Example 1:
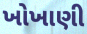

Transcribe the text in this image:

ખોખાણી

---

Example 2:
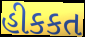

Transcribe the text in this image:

હીકકત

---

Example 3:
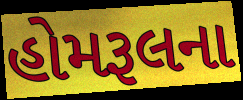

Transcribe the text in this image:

હોમરૂલના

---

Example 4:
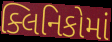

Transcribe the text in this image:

ક્લિનિકોમાં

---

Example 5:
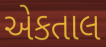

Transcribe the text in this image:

એકતાલ